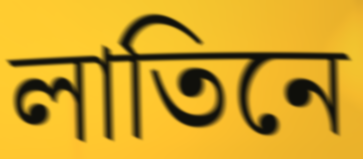
লাতিনে